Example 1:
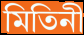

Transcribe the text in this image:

মিতিনী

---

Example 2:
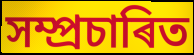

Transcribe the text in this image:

সম্প্ৰচাৰিত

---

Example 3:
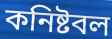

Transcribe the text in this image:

কনিষ্টবল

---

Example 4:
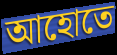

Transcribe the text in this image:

আহোতে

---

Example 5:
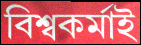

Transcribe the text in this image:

বিশ্বকৰ্মাই